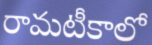
రామటీకాలో